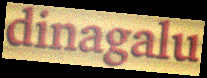
dinagalu